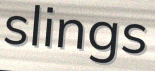
slings